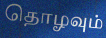
தொழவும்